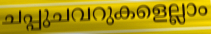
ചപ്പുചവറുകളെല്ലാം